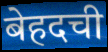
बेहदची